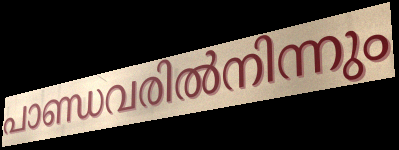
പാണ്ഡവരിൽനിന്നും